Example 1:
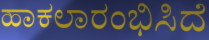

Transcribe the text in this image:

ಹಾಕಲಾರಂಭಿಸಿದೆ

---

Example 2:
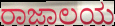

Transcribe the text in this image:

ರಾಜಾಲಯ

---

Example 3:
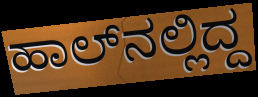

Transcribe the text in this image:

ಹಾಲ್‌ನಲ್ಲಿದ್ದ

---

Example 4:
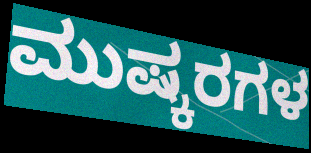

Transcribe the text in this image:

ಮುಷ್ಕರಗಳ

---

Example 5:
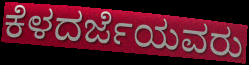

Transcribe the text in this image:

ಕೆಳದರ್ಜೆಯವರು